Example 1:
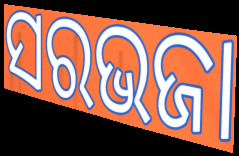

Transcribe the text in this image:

ସରଭଜା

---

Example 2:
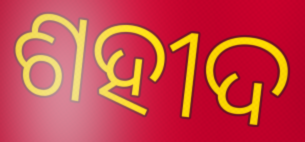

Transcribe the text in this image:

ଶହୀଦ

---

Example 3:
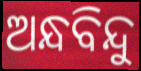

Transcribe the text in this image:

ଅନ୍ଧବିନ୍ଦୁ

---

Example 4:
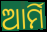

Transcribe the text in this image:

ଆର୍ମି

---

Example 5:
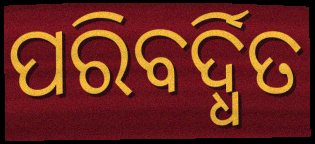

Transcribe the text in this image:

ପରିବର୍ଦ୍ଧିତ